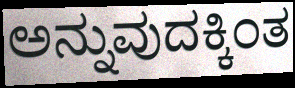
ಅನ್ನುವುದಕ್ಕಿಂತ